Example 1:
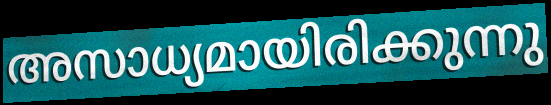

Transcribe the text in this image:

അസാധ്യമായിരിക്കുന്നു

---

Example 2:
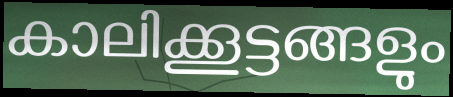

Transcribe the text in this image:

കാലിക്കൂട്ടങ്ങളും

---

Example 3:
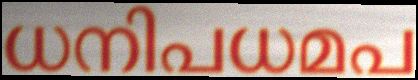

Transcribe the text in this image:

ധനിപധമപ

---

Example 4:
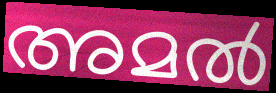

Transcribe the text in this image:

അമൽ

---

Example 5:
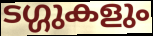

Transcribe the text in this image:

ടഗ്ഗുകളും